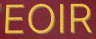
EOIR